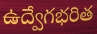
ఉద్వేగభరిత